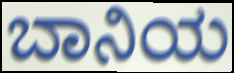
ಬಾನಿಯ